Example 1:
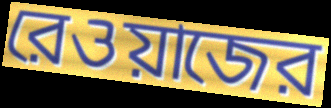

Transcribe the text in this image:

রেওয়াজের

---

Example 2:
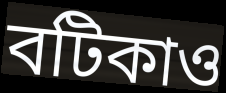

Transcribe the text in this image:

বটিকাও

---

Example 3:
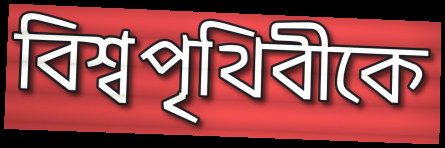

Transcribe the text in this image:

বিশ্বপৃথিবীকে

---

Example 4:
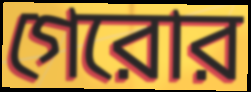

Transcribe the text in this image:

গেরোর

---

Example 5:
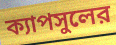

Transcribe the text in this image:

ক্যাপসুলের